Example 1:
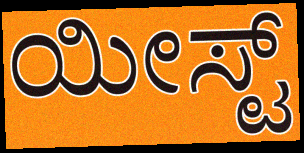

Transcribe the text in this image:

ಯೀಸ್ಟ್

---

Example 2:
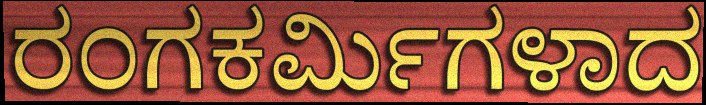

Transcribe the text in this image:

ರಂಗಕರ್ಮಿಗಳಾದ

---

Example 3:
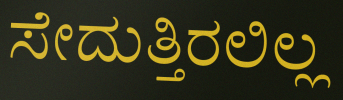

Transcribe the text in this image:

ಸೇದುತ್ತಿರಲಿಲ್ಲ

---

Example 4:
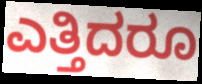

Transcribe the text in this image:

ಎತ್ತಿದರೂ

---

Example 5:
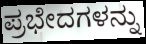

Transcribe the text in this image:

ಪ್ರಭೇದಗಳನ್ನು